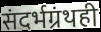
संदर्भग्रंथही